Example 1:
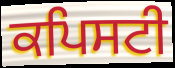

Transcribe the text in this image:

ਕਪਿਸਟੀ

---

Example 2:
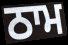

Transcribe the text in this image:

ਠਾਮ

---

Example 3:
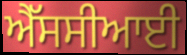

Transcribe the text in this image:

ਐੱਸਸੀਆਈ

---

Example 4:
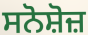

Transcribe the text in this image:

ਸਨੋਸ਼ੋਜ਼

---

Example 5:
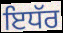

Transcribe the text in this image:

ਇਧੱਰ